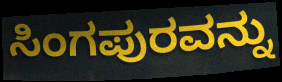
ಸಿಂಗಪುರವನ್ನು